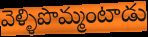
వెళ్ళిపొమ్మంటాడు